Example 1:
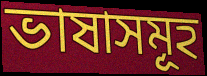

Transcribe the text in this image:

ভাষাসমূহ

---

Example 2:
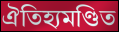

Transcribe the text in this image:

ঐতিহ্যমণ্ডিত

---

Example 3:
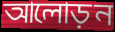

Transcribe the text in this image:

আলোড়ন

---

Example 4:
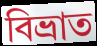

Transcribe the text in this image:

বিভ্ৰাত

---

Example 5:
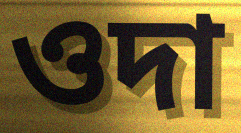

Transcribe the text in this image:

ওদা